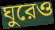
ঘুরেও